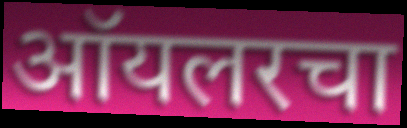
ऑयलरचा